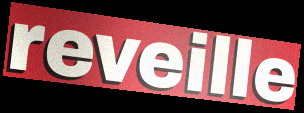
reveille